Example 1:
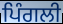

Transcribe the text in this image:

ਪਿੰਗਲੀ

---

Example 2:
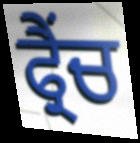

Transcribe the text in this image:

ਫ੍ਰੈਂਚ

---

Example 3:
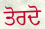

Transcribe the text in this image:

ਤੋਰਦੋ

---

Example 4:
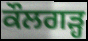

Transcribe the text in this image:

ਕੌਲਗੜ੍ਹ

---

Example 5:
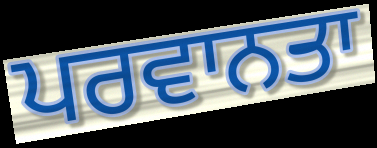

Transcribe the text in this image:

ਪਰਵਾਨਤਾ